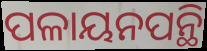
ପଳାୟନପନ୍ଥି